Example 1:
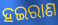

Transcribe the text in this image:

ହଇରାଣ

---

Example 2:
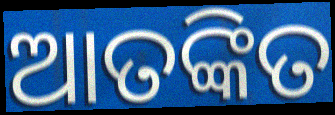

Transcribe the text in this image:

ଆତଙ୍କିତ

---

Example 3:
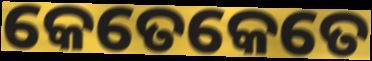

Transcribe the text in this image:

କେତେକେତେ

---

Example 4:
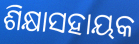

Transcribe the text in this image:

ଶିକ୍ଷାସହାୟକ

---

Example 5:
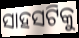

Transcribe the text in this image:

ସାହସଟିକୁ